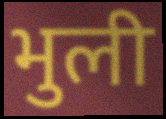
भुली